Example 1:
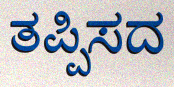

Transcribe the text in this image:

ತಪ್ಪಿಸದ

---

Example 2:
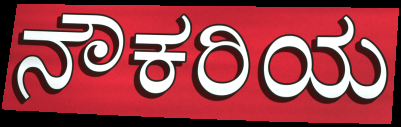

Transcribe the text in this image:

ನೌಕರಿಯ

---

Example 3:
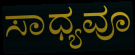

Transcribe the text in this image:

ಸಾಧ್ಯವೂ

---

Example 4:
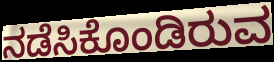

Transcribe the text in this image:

ನಡೆಸಿಕೊಂಡಿರುವ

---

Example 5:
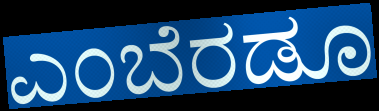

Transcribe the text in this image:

ಎಂಬೆರಡೂ